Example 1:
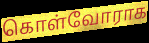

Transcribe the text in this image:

கொள்வோராக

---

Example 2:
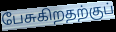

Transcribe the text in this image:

பேசுகிறதற்குப்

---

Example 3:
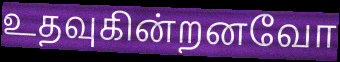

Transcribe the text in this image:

உதவுகின்றனவோ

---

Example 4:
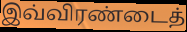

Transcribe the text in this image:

இவ்விரண்டைத்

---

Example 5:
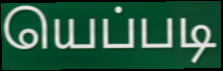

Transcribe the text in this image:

யெப்படி